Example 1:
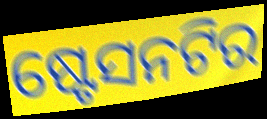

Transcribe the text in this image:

ଷ୍ଟେସନଟିର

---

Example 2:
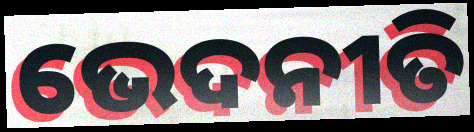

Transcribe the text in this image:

ଭେଦନୀତି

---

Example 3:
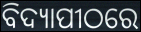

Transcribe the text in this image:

ବିଦ୍ୟାପୀଠରେ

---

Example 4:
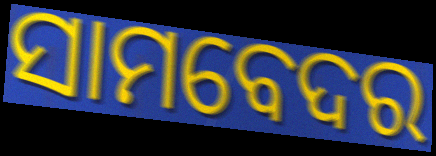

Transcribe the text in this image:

ସାମବେଦର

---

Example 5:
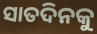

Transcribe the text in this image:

ସାତଦିନକୁ